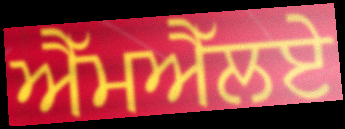
ਐੱਮਐੱਲਏ